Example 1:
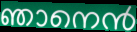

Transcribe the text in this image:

ഞാനെൻ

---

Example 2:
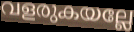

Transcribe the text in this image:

വളരുകയല്ലേ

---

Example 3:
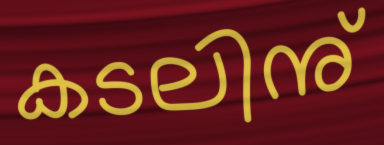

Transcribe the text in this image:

കടലിനു്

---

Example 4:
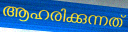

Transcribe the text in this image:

ആഹരിക്കുന്നത്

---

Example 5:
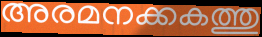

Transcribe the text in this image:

അരമനക്കകത്തു